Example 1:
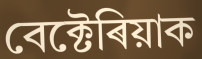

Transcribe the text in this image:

বেক্টেৰিয়াক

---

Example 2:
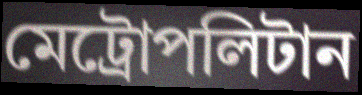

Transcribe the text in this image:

মেট্ৰোপলিটান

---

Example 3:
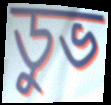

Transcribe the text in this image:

ডুভ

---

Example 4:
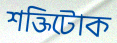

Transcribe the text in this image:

শক্তিটোক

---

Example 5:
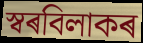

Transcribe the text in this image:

স্বৰবিলাকৰ